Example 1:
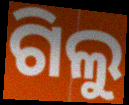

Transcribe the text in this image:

ଗିଲୁ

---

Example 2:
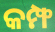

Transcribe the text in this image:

କମ୍ଫ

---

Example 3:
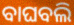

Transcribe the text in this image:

ବାଘବଲି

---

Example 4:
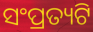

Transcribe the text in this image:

ସଂପ୍ରତ୍ୟଟି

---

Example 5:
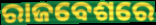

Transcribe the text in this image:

ରାଜବେଶରେ